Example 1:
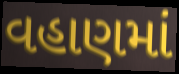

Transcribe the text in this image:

વહાણમાં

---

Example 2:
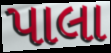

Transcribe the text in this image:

પાલા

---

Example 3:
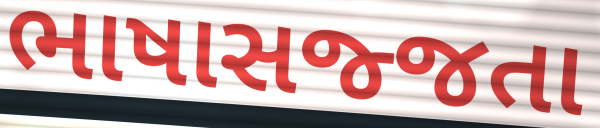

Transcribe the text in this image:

ભાષાસજ્જતા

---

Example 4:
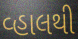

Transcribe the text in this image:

વ્હાલથી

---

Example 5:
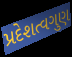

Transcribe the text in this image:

પ્રદેશત્વગુણ